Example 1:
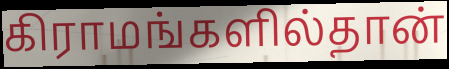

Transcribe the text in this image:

கிராமங்களில்தான்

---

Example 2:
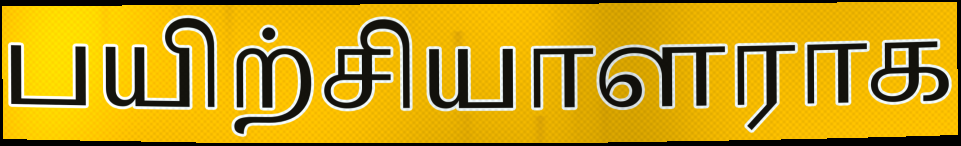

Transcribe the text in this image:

பயிற்சியாளராக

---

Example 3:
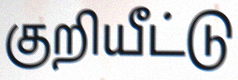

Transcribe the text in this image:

குறியீட்டு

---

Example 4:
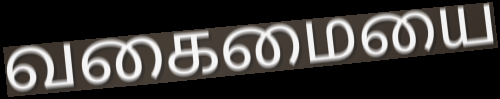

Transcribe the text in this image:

வகைமையை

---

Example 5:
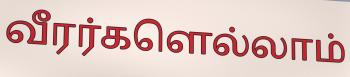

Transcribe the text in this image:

வீரர்களெல்லாம்